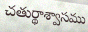
చతుర్థాశ్వాసము